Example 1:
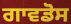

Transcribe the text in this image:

ਗਾਵਡੋਸ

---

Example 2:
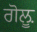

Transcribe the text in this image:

ਗੋਲ਼ੂ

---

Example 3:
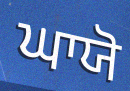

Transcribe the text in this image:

ਘਾਯੋ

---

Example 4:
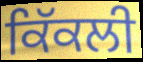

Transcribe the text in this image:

ਕਿੱਕਲੀ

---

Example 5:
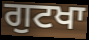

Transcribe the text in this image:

ਗੁਟਖਾ